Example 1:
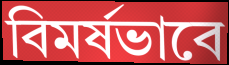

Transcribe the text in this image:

বিমর্ষভাবে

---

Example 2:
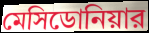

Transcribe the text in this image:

মেসিডোনিয়ার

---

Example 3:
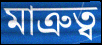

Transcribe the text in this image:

মাত্রুত্ব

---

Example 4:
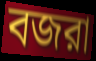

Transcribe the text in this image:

বজরা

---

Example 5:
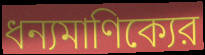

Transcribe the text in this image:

ধন্যমাণিক্যের